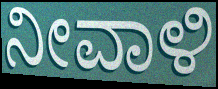
ನೀವಾಳಿ